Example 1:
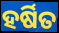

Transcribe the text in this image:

ହର୍ଷିତ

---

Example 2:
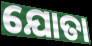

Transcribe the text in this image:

ଯୋତା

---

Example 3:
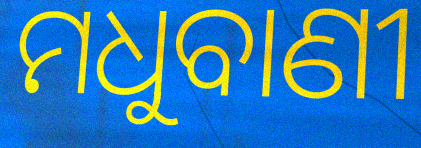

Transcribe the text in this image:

ମଧୁବାଣୀ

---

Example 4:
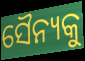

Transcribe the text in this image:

ସୈନ୍ୟକୁ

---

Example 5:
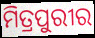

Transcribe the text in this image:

ମିତ୍ରପୁରୀର